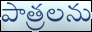
పాత్రలను